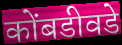
कोंबडीवडे